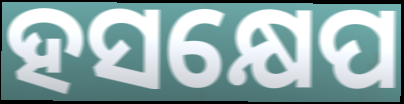
ହସକ୍ଷେପ